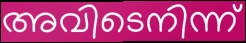
അവിടെനിന്ന്